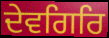
ਦੇਵਗਿਰਿ